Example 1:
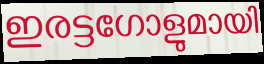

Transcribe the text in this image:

ഇരട്ടഗോളുമായി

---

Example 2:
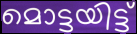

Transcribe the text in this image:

മൊട്ടയിട്ട്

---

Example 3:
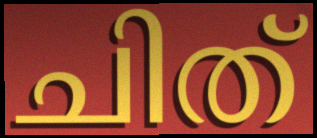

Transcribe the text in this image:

ചിത്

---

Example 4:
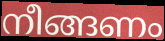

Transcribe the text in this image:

നീങ്ങണം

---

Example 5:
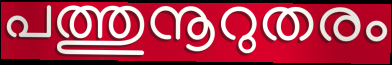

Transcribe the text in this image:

പത്തുനൂറുതരം